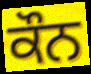
ਕੌਨ